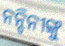
ନନ୍ଦିନୀଙ୍କୁ